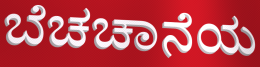
ಬೆಚಚಾನೆಯ